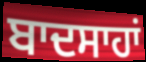
ਬਾਦਸਾਹਾਂ